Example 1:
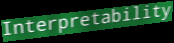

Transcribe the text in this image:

Interpretability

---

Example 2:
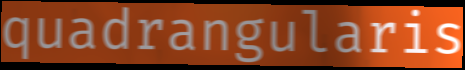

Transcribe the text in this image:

quadrangularis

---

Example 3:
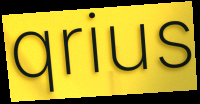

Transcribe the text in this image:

qrius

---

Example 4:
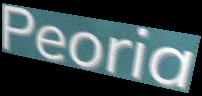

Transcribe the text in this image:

Peoria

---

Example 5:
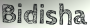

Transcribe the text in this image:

Bidisha